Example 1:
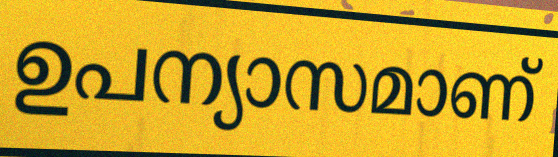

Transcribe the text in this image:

ഉപന്യാസമാണ്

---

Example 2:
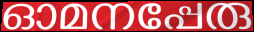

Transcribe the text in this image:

ഓമനപ്പേരു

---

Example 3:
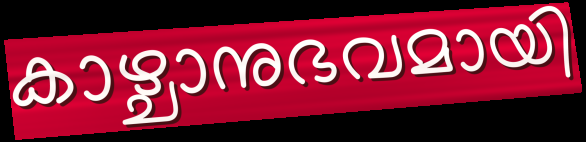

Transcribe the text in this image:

കാഴ്ചാനുഭവമായി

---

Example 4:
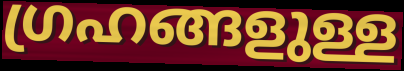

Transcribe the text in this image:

ഗ്രഹങ്ങളുള്ള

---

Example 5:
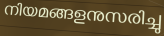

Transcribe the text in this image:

നിയമങ്ങളനുസരിച്ചു